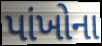
પાંખોના